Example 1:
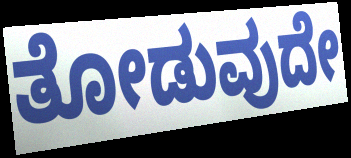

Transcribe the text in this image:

ತೋಡುವುದೇ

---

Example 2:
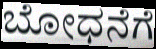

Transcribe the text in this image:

ಬೋಧನೆಗೆ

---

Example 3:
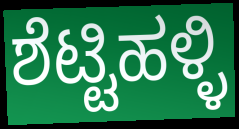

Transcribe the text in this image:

ಶೆಟ್ಟಿಹಳ್ಳಿ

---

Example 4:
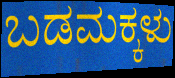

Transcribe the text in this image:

ಬಡಮಕ್ಕಳು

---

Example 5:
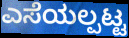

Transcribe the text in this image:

ಎಸೆಯಲ್ಪಟ್ಟ